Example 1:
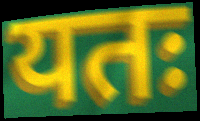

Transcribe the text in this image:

यतः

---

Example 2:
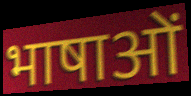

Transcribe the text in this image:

भाषाओें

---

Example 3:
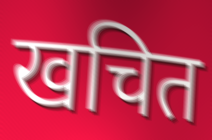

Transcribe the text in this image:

खचित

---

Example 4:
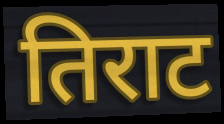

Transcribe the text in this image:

तिराट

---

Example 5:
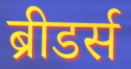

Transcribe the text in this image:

ब्रीडर्स